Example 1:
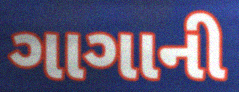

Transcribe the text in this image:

ગાગાની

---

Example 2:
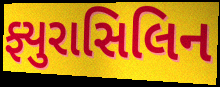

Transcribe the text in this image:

ફ્યુરાસિલિન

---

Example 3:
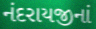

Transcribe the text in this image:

નંદરાયજીનાં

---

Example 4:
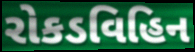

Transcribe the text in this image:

રોકડવિહિન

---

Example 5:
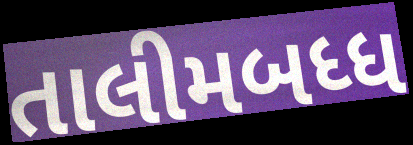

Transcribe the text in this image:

તાલીમબધ્ધ